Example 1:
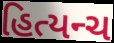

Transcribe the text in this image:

હિત્યન્ચ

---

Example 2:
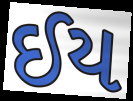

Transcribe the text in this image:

ઈય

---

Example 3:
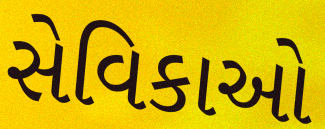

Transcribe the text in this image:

સેવિકાઓ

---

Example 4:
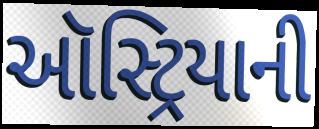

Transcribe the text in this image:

ઑસ્ટ્રિયાની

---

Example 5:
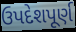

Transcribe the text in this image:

ઉપદેશપૂર્ણ